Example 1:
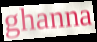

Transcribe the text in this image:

ghanna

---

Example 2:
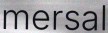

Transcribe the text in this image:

mersal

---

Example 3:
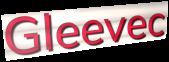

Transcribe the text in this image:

Gleevec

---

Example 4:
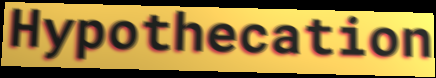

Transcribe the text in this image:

Hypothecation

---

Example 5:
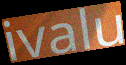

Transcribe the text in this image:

ivalu